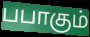
பபாகும்